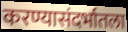
करण्यासंदर्भातला